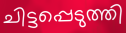
ചിട്ടപ്പെടുത്തി